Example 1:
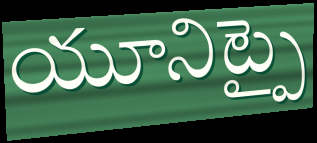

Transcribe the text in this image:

యూనిట్పై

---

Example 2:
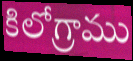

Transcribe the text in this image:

కిలోగ్రాము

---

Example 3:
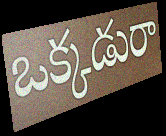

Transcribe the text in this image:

ఒక్కడురా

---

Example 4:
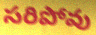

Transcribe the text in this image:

సరిపోవు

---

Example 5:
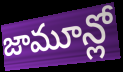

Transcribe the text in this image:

జామూన్లో